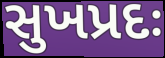
સુખપ્રદઃ